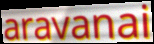
aravanai